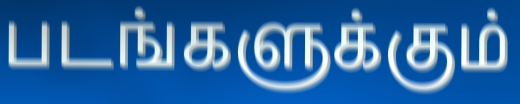
படங்களுக்கும்